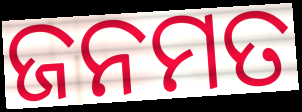
ଜନମତ